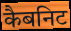
कैबनिट